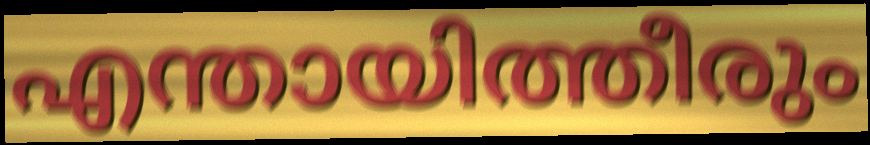
എന്തായിത്തീരും